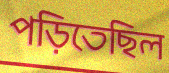
পড়িতেছিল